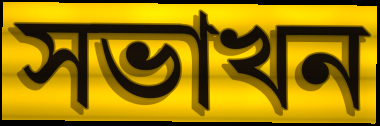
সভাখন